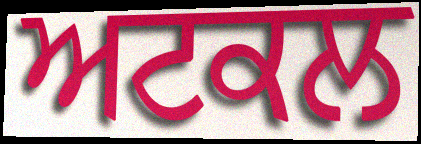
ਅਟਕਲ